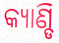
କ୍ୟାଣ୍ଡି